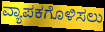
ವ್ಯಾಪಕಗೊಳಿಸಲು